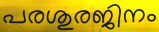
പരശുരജിനം